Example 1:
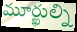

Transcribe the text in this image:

మూర్ఖుల్ని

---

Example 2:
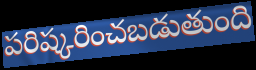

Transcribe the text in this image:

పరిష్కరించబడుతుంది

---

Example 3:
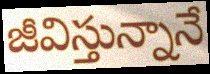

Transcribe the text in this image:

జీవిస్తున్నానే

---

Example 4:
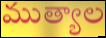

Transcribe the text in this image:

ముత్యాల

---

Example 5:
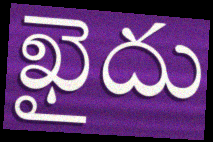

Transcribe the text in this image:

ఖైదు